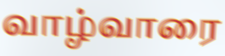
வாழ்வாரை